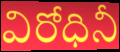
విరోధినీ